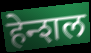
हेन्शल